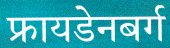
फ्रायडेनबर्ग